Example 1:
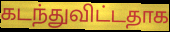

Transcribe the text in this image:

கடந்துவிட்டதாக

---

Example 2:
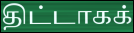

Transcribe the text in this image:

திட்டாகக்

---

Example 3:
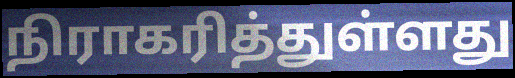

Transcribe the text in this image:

நிராகரித்துள்ளது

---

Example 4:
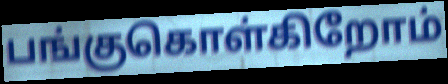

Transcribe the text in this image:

பங்குகொள்கிறோம்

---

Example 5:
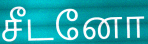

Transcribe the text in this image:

சீடனோ